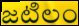
జటిలం